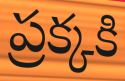
ప్రక్కకి